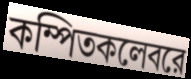
কম্পিতকলেবরে